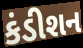
કંડીશન